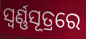
ସ୍ୱର୍ଣ୍ଣସୂତ୍ରରେ